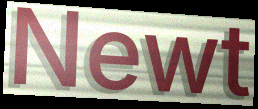
Newt